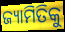
ଜ୍ୟାମିତିକୁ